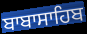
ਬਾਬਾਸਾਹਿਬ